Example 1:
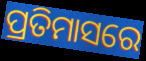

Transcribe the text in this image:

ପ୍ରତିମାସରେ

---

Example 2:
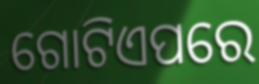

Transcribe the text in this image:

ଗୋଟିଏପରେ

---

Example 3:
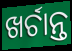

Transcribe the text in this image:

ଖର୍ଚାନ୍ତ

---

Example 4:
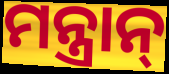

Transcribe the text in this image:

ମନ୍ତ୍ରାନ୍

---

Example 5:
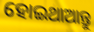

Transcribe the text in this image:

ହୋଇଥାଆନ୍ତୁ